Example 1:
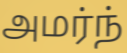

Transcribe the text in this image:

அமர்ந்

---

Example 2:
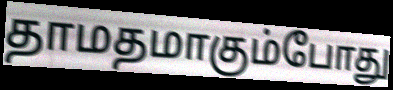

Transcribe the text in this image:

தாமதமாகும்போது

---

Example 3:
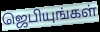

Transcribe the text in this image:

ஜெபியுங்கள்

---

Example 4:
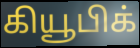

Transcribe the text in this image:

கியூபிக்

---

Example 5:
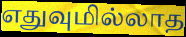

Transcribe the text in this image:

எதுவுமில்லாத